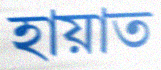
হায়াত